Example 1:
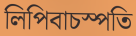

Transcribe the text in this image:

লিপিবাচস্পতি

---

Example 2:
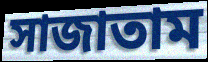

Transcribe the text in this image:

সাজাতাম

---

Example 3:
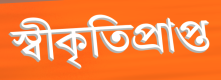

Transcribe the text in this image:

স্বীকৃতিপ্রাপ্ত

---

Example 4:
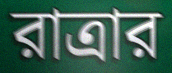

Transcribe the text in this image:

রাত্রার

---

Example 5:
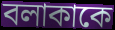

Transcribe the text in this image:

বলাকাকে